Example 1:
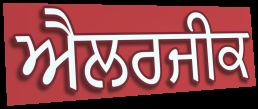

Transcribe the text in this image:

ਐਲਰਜੀਕ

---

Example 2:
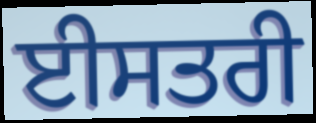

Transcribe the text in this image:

ਈਸਤਰੀ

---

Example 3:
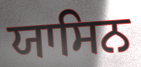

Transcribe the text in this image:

ਯਾਸਿਨ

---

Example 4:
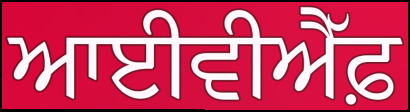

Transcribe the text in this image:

ਆਈਵੀਐੱਫ਼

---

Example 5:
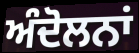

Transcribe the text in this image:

ਅੰਦੋਲਨਾਂ